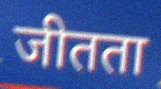
जीतता